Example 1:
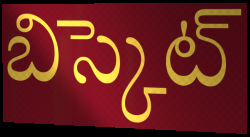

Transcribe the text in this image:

బిస్కెట్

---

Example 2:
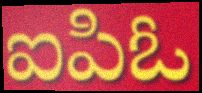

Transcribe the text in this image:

ఐపిఓ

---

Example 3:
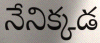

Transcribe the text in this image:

నేనిక్కడ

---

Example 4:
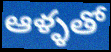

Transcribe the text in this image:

ఆళ్ళతో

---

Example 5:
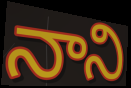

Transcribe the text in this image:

నాని